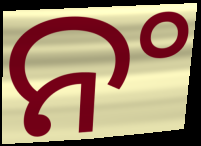
ନଂ